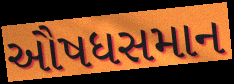
ઔષધસમાન